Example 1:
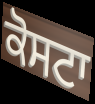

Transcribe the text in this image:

ਕੋਸਟਾ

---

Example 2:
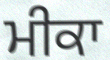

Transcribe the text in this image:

ਮੀਕਾ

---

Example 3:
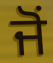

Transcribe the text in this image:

ਜੋਂ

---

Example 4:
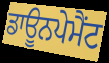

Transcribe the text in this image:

ਡਾਊਨਪੇਮੈਂਟ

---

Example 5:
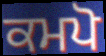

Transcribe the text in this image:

ਕਮਪੋ